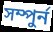
সম্পুৰ্ন